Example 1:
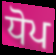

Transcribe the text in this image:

ਧੋਪ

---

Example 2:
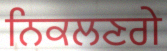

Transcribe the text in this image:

ਨਿਕਲਣਗੇ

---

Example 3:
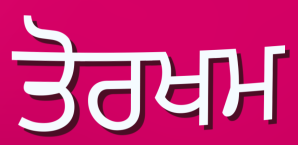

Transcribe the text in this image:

ਤੋਰਖਮ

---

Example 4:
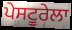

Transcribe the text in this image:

ਪੇਸਟੂਰੇਲਾ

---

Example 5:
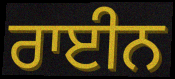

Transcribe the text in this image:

ਰਾਈਨ